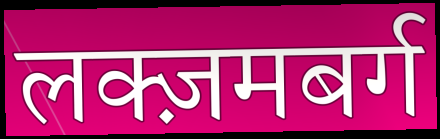
लक्ज़मबर्ग